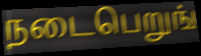
நடைபெறுங்